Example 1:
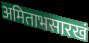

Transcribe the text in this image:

अमिताभसारखं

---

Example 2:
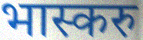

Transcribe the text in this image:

भास्करु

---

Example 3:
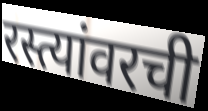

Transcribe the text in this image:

रस्त्यांवरची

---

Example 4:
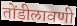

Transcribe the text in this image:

तोंडीलावणी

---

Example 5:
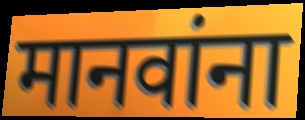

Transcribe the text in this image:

मानवांना